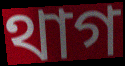
থাগ